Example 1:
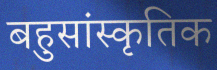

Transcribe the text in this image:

बहुसांस्कृतिक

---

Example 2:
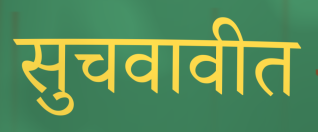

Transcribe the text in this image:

सुचवावीत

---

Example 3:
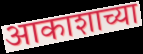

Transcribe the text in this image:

आकाशाच्या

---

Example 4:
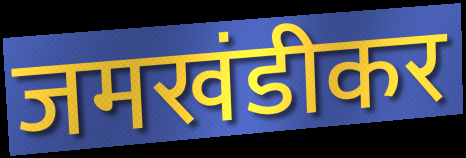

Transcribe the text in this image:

जमखंडीकर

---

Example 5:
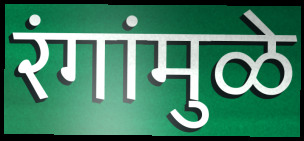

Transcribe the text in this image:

रंगांमुळे